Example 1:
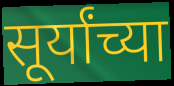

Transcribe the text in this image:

सूर्यांच्या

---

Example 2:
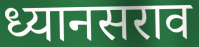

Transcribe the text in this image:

ध्यानसराव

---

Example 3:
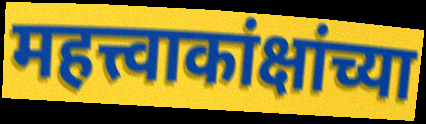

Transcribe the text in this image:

महत्त्वाकांक्षांच्या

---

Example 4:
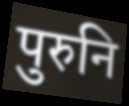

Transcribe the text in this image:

पुरुनि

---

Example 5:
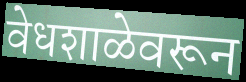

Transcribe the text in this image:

वेधशाळेवरून